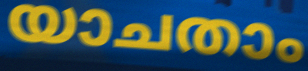
യാചതാം